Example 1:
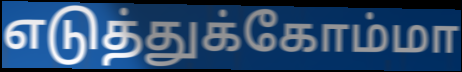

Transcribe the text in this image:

எடுத்துக்கோம்மா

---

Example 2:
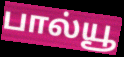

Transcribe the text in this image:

பால்யூ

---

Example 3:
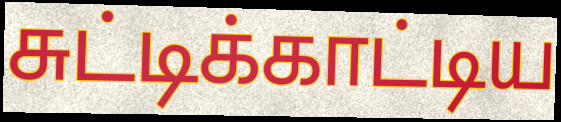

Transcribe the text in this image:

சுட்டிக்காட்டிய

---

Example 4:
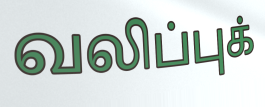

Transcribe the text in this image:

வலிப்புக்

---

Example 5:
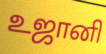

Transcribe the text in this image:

உஜானி